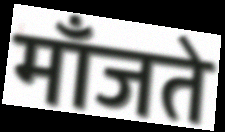
माँजते